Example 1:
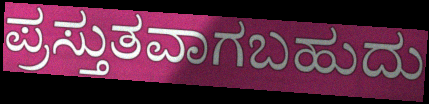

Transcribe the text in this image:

ಪ್ರಸ್ತುತವಾಗಬಹುದು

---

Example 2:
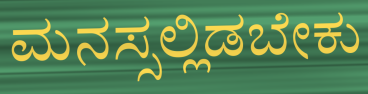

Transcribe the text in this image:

ಮನಸ್ಸಲ್ಲಿಡಬೇಕು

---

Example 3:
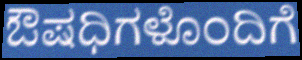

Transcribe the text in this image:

ಔಷಧಿಗಳೊಂದಿಗೆ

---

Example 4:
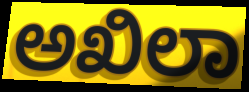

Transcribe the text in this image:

ಅಖಿಲಾ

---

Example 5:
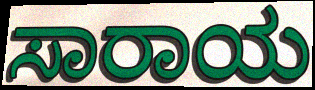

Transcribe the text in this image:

ಸಾರಾಯ